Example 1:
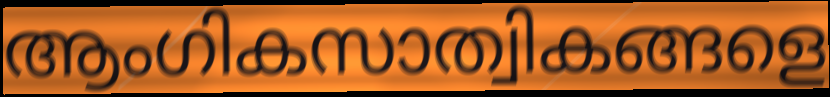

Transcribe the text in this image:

ആംഗികസാത്വികങ്ങളെ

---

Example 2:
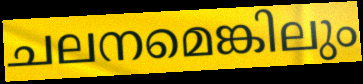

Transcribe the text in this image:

ചലനമെങ്കിലും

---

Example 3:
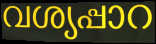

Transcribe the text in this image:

വശ്യപ്പാറ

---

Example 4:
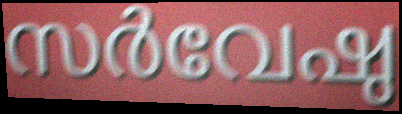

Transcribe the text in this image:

സർവേഷു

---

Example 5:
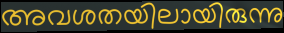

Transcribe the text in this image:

അവശതയിലായിരുന്നു